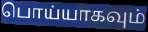
பொய்யாகவும்